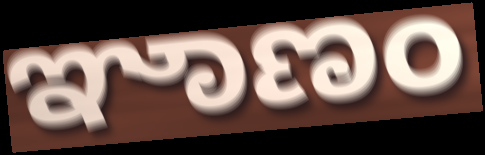
ಞಾಣಂ